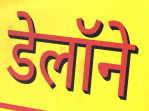
डेलॉने